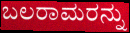
ಬಲರಾಮರನ್ನು